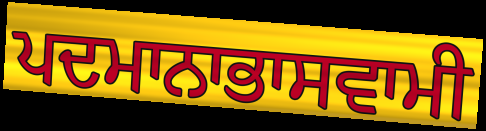
ਪਦਮਾਨਾਭਾਸਵਾਮੀ